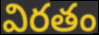
విరతం